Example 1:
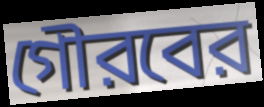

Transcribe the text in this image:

গৌরবের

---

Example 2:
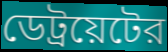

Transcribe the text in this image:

ডেট্রয়েটের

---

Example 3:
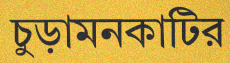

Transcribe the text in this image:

চুড়ামনকাটির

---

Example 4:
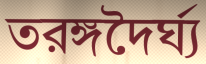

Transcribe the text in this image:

তরঙ্গদৈর্ঘ্য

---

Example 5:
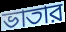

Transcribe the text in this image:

ভাতার